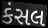
કંસલ